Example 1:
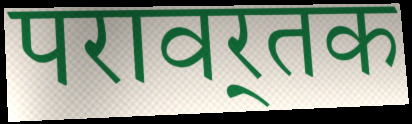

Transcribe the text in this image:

परावर्तक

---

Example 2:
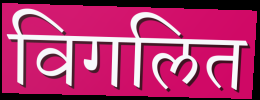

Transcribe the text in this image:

विगलित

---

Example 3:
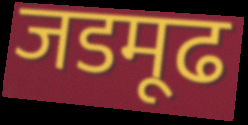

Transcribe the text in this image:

जडमूढ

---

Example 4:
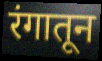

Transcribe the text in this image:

रंगातून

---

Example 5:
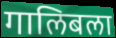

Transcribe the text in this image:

गालिबला